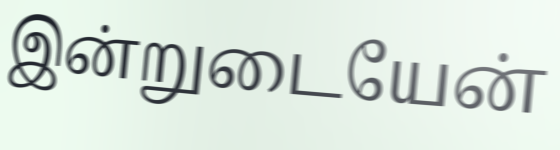
இன்றுடையேன்